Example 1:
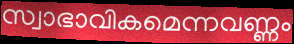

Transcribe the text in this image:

സ്വാഭാവികമെന്നവണ്ണം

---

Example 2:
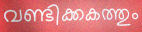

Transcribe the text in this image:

വണ്ടിക്കകത്തും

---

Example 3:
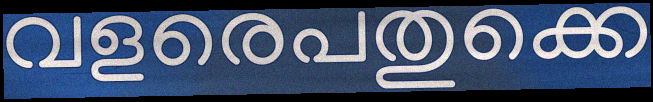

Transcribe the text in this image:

വളരെപതുക്കെ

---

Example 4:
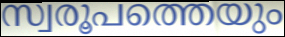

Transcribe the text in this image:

സ്വരൂപത്തെയും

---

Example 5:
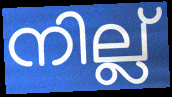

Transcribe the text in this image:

നില്ല്